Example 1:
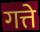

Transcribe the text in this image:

गत्ते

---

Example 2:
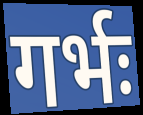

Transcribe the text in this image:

गर्भः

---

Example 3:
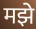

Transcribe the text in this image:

मझे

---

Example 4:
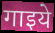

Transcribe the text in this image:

गाइये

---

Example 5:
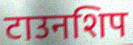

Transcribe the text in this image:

टाउनशिप